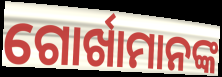
ଗୋର୍ଖାମାନଙ୍କ